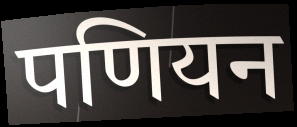
पणियन